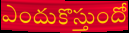
ఎందుకొస్తుందో